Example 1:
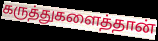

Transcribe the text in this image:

கருத்துகளைத்தான்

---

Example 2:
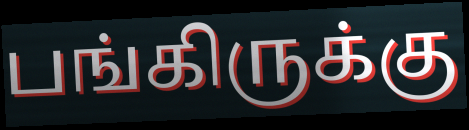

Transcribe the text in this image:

பங்கிருக்கு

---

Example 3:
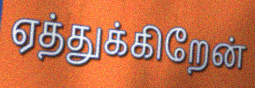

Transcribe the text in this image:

ஏத்துக்கிறேன்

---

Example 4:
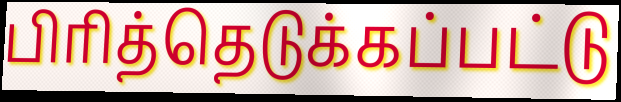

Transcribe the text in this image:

பிரித்தெடுக்கப்பட்டு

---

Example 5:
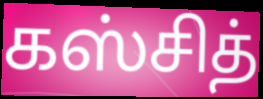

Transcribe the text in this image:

கஸ்சித்